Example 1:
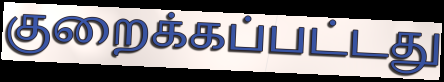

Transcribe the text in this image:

குறைக்கப்பட்டது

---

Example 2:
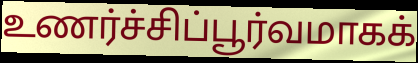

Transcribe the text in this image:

உணர்ச்சிப்பூர்வமாகக்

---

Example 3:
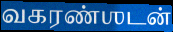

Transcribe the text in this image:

வகரண்ஶடன்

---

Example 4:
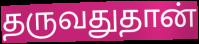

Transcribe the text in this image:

தருவதுதான்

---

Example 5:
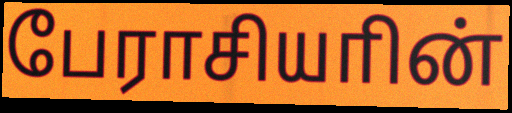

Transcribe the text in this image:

பேராசியரின்